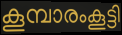
കൂമ്പാരംകൂട്ടി